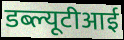
डब्ल्यूटीआई